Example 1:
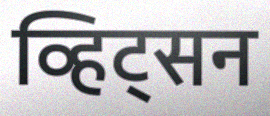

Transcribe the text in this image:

व्हिट्सन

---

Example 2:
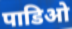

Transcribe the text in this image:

पाडिओ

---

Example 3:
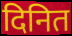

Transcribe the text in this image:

दिनित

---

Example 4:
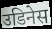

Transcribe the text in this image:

उडिनेस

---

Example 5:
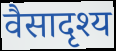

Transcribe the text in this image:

वैसादृश्य